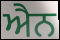
ਐਨ